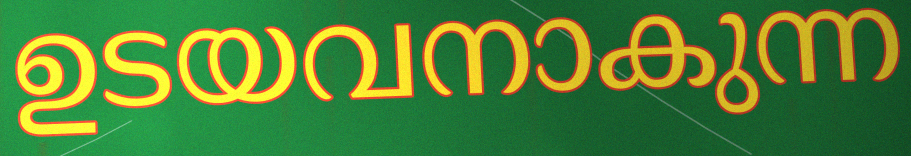
ഉടയവനാകുന്ന